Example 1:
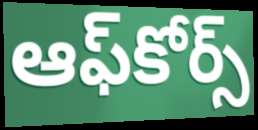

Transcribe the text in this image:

ఆఫ్‌కోర్స్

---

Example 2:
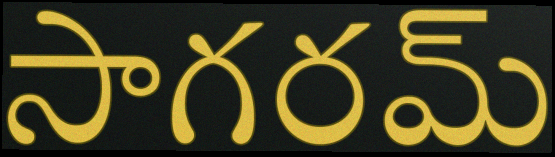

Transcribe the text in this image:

సాగరమ్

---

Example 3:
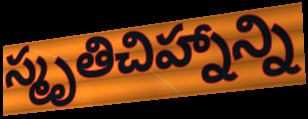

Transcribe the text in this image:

స్మృతిచిహ్నాన్ని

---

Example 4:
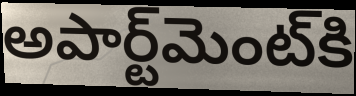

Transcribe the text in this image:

అపార్ట్‌మెంట్‌కి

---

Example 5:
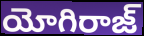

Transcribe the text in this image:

యోగిరాజ్